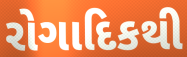
રોગાદિકથી